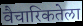
वैचारिकतेला